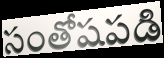
సంతోషపడి